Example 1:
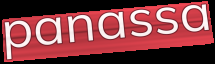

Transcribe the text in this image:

panassa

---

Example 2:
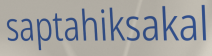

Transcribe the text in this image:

saptahiksakal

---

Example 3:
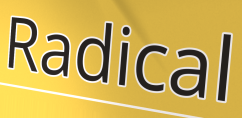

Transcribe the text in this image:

Radical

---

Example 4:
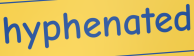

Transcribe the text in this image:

hyphenated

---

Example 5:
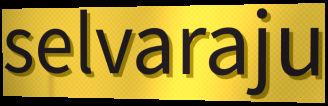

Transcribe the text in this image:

selvaraju